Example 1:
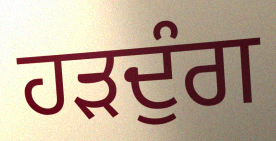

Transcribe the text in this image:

ਹੜਦੁੰਗ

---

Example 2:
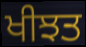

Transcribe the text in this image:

ਖੀਝਤ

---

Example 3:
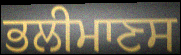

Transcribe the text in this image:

ਭਲੀਮਾਣਸ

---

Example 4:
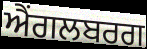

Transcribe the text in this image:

ਐਂਗਲਬਰਗ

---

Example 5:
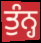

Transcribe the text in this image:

ਤੁੰਨ੍ਹ